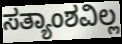
ಸತ್ಯಾಂಶವಿಲ್ಲ